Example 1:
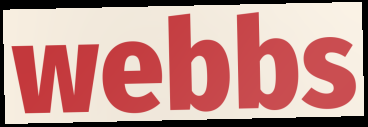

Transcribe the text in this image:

webbs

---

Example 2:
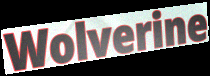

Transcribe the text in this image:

Wolverine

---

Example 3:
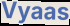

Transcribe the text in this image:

Vyaas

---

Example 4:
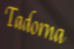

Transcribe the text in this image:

Tadorna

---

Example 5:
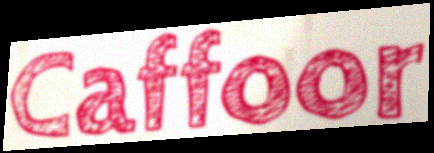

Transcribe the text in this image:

Caffoor